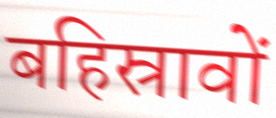
बहिस्रावों